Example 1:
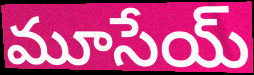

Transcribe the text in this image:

మూసేయ్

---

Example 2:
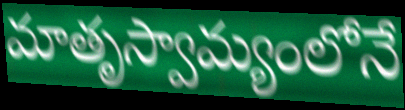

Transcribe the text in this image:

మాతృస్వామ్యంలోనే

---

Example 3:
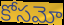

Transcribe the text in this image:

కోసమో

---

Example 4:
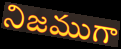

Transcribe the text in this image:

నిజముగా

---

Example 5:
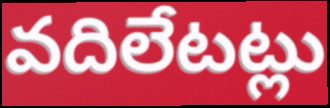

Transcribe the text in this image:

వదిలేటట్లు